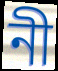
নী